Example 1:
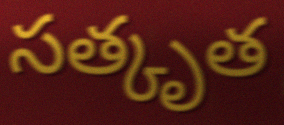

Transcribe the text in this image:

సత్కృత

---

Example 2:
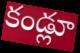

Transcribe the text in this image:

కండ్లూ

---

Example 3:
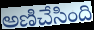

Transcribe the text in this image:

అణిచేసింది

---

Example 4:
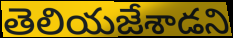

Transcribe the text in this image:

తెలియజేశాడని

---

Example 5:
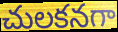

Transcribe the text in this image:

చులకనగా